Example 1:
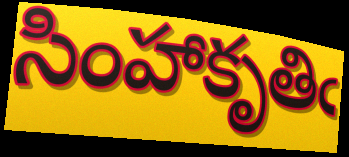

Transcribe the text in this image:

సింహాకృతిఁ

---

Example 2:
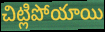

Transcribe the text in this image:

చిట్లిపోయాయి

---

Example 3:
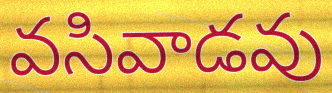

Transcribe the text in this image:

వసివాడవు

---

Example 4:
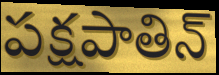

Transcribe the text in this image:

పక్షపాతిన్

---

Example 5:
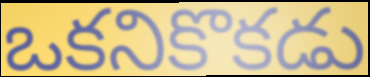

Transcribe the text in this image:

ఒకనికొకడు